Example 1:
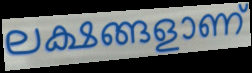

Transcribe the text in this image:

ലക്ഷങ്ങളാണ്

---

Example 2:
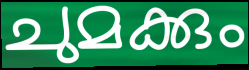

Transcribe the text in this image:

ചുമക്കും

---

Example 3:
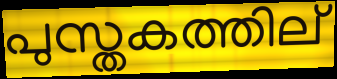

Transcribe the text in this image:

പുസ്തകത്തില്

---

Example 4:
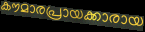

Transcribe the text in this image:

കൗമാരപ്രായക്കാരായ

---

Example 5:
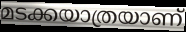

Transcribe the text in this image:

മടക്കയാത്രയാണ്